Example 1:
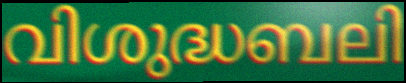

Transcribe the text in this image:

വിശുദ്ധബലി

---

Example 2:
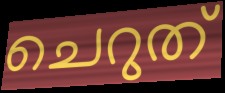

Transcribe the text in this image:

ചെറുത്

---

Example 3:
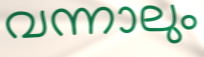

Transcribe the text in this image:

വന്നാലും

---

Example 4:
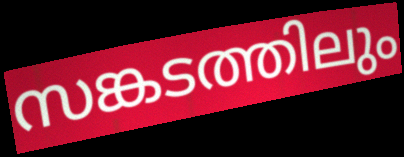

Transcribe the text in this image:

സങ്കടത്തിലും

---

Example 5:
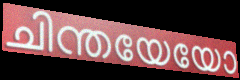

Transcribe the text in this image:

ചിന്തയേയോ